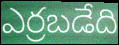
ఎర్రబడేది